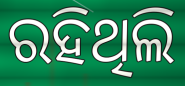
ରହିଥିଲି